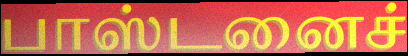
பாஸ்டனைச்